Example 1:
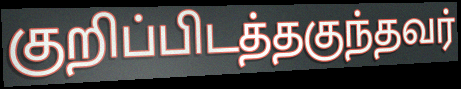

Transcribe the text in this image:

குறிப்பிடத்தகுந்தவர்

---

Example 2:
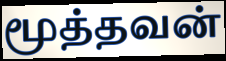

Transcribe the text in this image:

மூத்தவன்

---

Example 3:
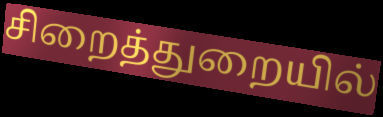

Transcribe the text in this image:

சிறைத்துறையில்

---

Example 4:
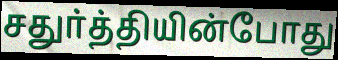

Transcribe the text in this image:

சதுர்த்தியின்போது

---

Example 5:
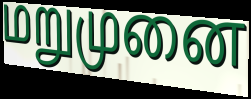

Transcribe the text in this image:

மறுமுனை